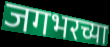
जगभरच्या